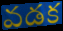
వడక